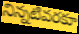
నిన్నటివరకూ